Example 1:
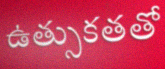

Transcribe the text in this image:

ఉత్సుకతతో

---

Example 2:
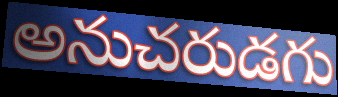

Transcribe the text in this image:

అనుచరుడగు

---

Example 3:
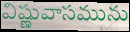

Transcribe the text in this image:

విష్ణువాసమును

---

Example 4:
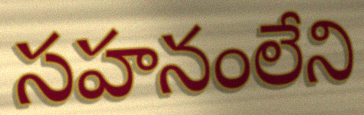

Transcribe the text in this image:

సహనంలేని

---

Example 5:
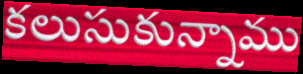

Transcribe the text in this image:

కలుసుకున్నాము